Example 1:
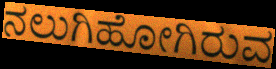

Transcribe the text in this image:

ನಲುಗಿಹೋಗಿರುವ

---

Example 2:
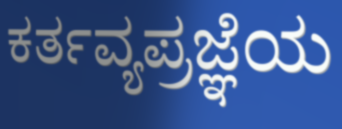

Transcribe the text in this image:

ಕರ್ತವ್ಯಪ್ರಜ್ಞೆಯ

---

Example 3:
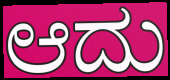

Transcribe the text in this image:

ಆದು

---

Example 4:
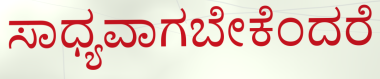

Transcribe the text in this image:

ಸಾಧ್ಯವಾಗಬೇಕೆಂದರೆ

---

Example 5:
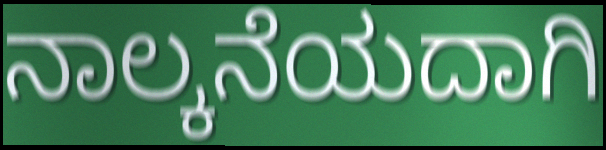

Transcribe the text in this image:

ನಾಲ್ಕನೆಯದಾಗಿ